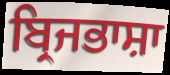
ਬ੍ਰਿਜਭਾਸ਼ਾ